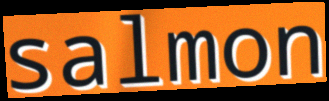
salmon